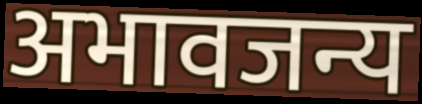
अभावजन्य